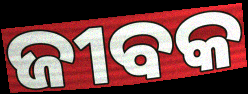
ଜୀବକ